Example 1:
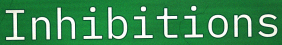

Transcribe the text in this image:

Inhibitions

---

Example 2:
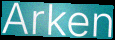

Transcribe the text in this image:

Arken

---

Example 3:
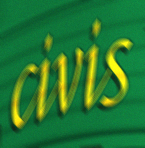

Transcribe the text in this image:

civis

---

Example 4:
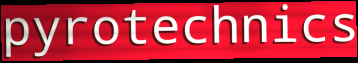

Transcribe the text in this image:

pyrotechnics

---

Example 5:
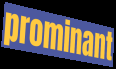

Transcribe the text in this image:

prominant